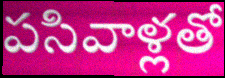
పసివాళ్లతో